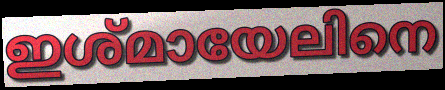
ഇശ്മായേലിനെ